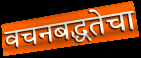
वचनबद्धतेचा